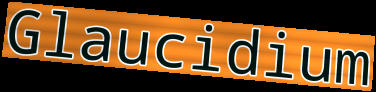
Glaucidium